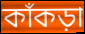
কাঁকড়া